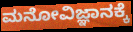
ಮನೋವಿಜ್ಞಾನಕ್ಕೆ